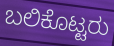
ಬಲಿಕೊಟ್ಟರು